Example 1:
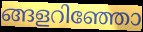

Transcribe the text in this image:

ങ്ങളറിഞ്ഞോ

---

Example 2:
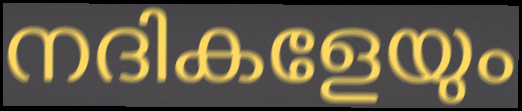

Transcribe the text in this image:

നദികളേയും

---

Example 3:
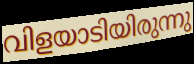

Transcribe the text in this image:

വിളയാടിയിരുന്നു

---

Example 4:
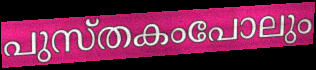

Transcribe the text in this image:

പുസ്തകംപോലും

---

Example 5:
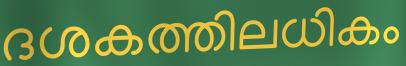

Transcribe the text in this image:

ദശകത്തിലധികം